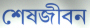
শেষজীবন